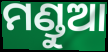
ମଣ୍ଡୁଆ